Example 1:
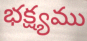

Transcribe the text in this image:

భక్ష్యము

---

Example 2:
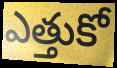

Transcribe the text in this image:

ఎత్తుకో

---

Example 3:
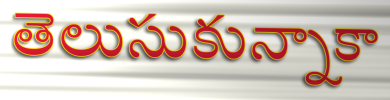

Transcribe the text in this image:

తెలుసుకున్నాకా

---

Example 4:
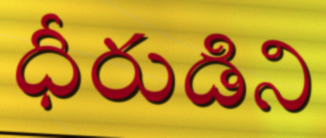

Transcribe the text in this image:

ధీరుడిని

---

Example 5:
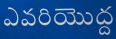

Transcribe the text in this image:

ఎవరియొద్ద